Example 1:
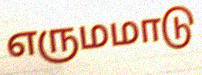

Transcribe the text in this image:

எருமமாடு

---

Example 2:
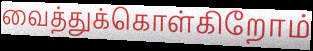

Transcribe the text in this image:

வைத்துக்கொள்கிறோம்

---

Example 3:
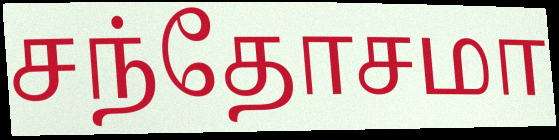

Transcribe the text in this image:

சந்தோசமா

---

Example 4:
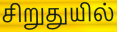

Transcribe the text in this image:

சிறுதுயில்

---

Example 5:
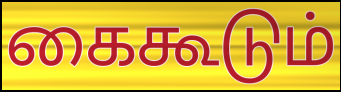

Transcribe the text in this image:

கைகூடும்